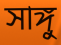
সাঙ্গু